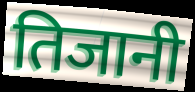
तिजानी